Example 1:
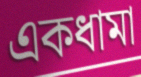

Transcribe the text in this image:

একধামা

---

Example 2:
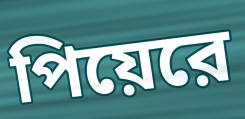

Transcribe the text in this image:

পিয়েরে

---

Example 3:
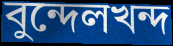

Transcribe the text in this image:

বুন্দেলখন্দ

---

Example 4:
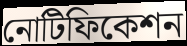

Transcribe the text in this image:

নোটিফিকেশন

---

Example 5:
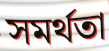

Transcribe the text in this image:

সমর্থতা